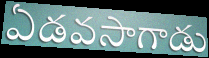
ఏడవసాగాడు